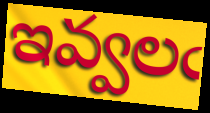
ఇవ్వలఁ